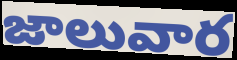
జాలువార